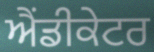
ਐਂਡੀਕੇਟਰ